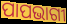
ପାପଭାଗୀ